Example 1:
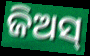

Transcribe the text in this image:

ଜିଅସ୍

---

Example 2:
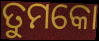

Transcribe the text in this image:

ତୁମକୋ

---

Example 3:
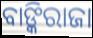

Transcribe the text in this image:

ବାଙ୍କିରାଜା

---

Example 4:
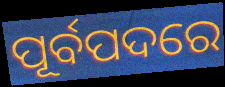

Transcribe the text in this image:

ପୂର୍ବପଦରେ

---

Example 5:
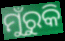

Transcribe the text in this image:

ମୁଁରୁକି